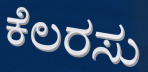
ಕೆಲರಸು